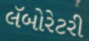
લૅબોરેટરી